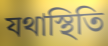
যথাস্থিতি